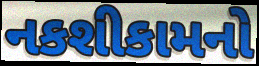
નકશીકામનો